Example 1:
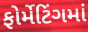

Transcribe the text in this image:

ફોર્મેટિંગમાં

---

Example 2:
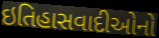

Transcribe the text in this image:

ઇતિહાસવાદીઓનો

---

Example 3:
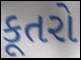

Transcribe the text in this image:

કૂતરો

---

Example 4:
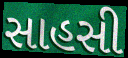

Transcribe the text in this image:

સાહસી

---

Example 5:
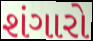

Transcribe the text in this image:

શંગારો